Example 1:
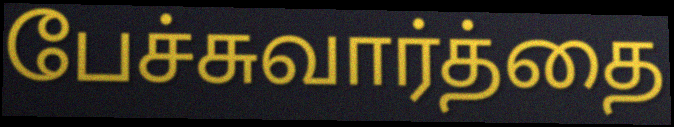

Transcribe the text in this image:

பேச்சுவார்த்தை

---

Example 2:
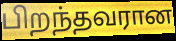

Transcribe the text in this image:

பிறந்தவரான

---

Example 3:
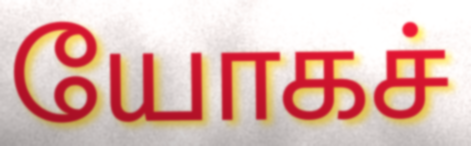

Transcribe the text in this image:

யோகச்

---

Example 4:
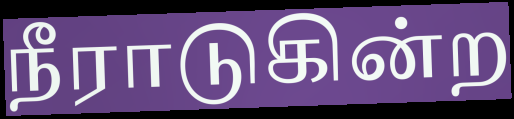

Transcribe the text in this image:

நீராடுகின்ற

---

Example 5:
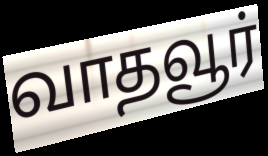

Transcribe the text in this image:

வாதவூர்